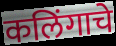
कलिंगाचे